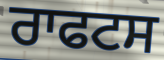
ਰਾਫਟਸ